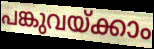
പങ്കുവയ്ക്കാം